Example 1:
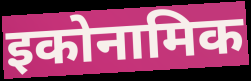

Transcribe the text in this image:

इकोनामिक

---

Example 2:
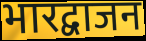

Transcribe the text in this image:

भारद्वाजन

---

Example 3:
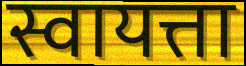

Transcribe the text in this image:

स्वायत्ता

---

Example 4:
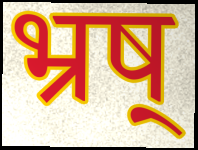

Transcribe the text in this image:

भ्रष्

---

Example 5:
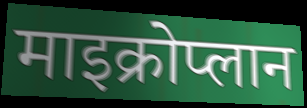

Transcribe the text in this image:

माइक्रोप्लान